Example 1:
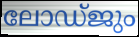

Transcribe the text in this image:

ലോഡ്ജും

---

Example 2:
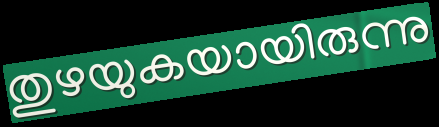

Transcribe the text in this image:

തുഴയുകയായിരുന്നു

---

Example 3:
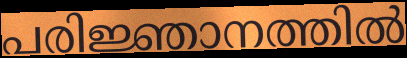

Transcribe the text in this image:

പരിജ്ഞാനത്തിൽ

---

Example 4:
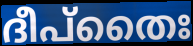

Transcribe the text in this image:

ദീപ്തൈഃ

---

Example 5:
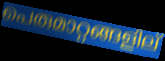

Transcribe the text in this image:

പെരുമാറ്റങ്ങളില്